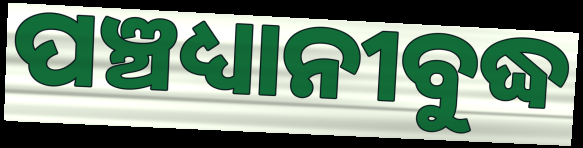
ପଞ୍ଚଧ୍ୟାନୀବୁଦ୍ଧ